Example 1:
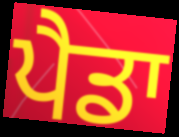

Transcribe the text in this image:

ਪੈਡਾ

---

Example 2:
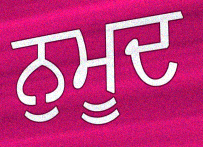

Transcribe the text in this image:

ਨੁਮੂਦ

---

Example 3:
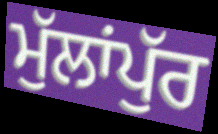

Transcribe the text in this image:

ਮੁੱਲਾਂਪੁੱਰ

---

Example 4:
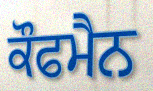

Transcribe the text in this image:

ਕੌਫਮੈਨ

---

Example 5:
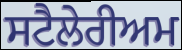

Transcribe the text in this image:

ਸਟੈਲੇਰੀਅਮ